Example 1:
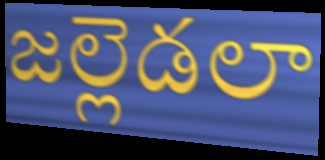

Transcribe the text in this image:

జల్లెడలా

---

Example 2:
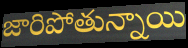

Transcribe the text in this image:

జారిపోతున్నాయి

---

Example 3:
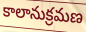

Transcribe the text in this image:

కాలానుక్రమణ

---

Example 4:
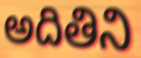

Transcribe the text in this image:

అదితిని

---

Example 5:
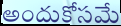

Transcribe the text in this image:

అందుకోసమే